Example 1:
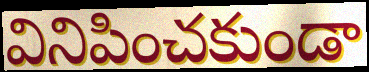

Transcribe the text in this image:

వినిపించకుండా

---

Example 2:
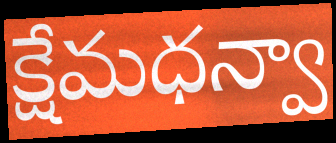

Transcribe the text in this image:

క్షేమధన్వా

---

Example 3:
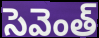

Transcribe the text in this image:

సెవెంత్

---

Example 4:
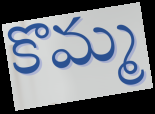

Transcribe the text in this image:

కొమ్మ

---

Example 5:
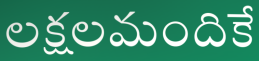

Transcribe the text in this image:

లక్షలమందికే